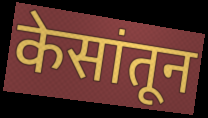
केसांतून